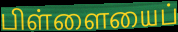
பிள்ளையைப்